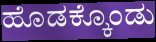
ಹೊಡಕ್ಕೊಂಡು